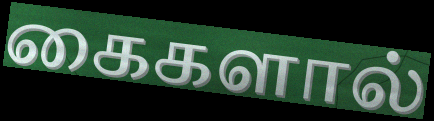
கைகளால்